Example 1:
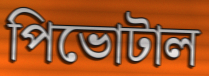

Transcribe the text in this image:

পিভোটাল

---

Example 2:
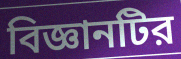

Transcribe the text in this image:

বিজ্ঞানটির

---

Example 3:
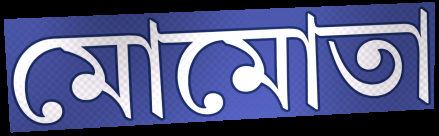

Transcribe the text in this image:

মোমোতা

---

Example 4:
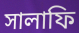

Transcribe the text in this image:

সালাফি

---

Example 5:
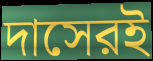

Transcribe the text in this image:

দাসেরই